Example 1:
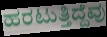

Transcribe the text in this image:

ಹರಟುತ್ತಿದ್ದೆವು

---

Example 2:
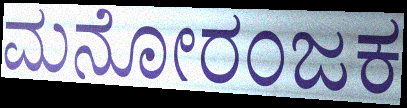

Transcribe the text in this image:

ಮನೋರಂಜಕ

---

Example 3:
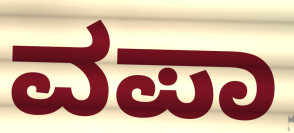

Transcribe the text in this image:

ವಪಾ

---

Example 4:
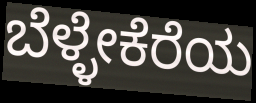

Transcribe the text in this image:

ಬೆಳ್ಳೇಕೆರೆಯ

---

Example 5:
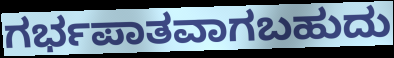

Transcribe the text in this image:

ಗರ್ಭಪಾತವಾಗಬಹುದು